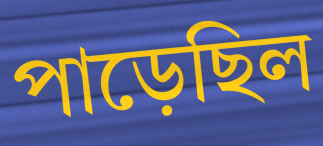
পাড়েছিল